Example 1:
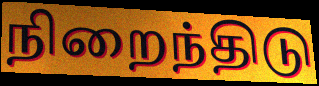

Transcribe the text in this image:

நிறைந்திடு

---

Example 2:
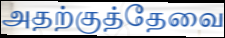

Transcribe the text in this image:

அதற்குத்தேவை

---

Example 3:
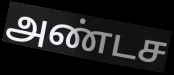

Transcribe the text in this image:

அண்டச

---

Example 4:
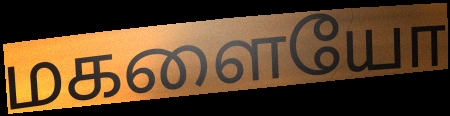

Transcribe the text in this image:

மகளையோ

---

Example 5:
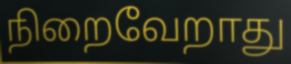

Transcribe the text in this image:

நிறைவேறாது